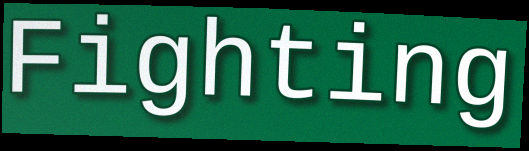
Fighting